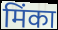
मिंका